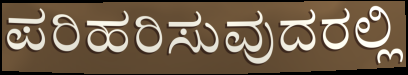
ಪರಿಹರಿಸುವುದರಲ್ಲಿ